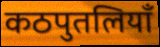
कठपुतलियाँ